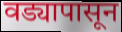
वड्यापासून